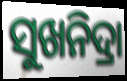
ସୁଖନିଦ୍ରା